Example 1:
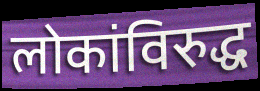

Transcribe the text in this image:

लोकांविरुद्ध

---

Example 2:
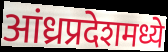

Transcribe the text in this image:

आंध्रप्रदेशमध्ये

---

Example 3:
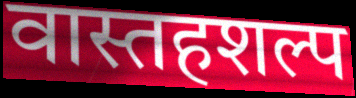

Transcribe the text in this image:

वास्तहशल्प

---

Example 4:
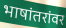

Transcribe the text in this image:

भाषांतरांवर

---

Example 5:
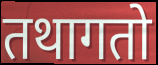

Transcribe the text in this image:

तथागतो